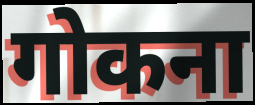
गोकना